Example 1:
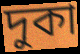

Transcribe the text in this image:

দুকা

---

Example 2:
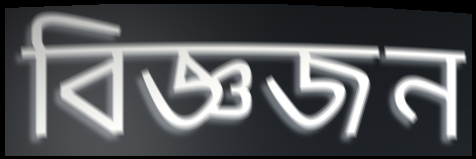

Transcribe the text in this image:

বিজ্ঞজন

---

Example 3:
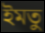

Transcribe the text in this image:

ইমতু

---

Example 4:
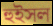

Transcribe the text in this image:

হুইসল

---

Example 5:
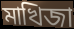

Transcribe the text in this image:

মাখিজা